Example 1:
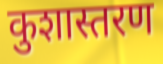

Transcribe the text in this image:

कुशास्तरण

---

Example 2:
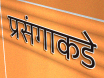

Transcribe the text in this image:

प्रसंगाकडे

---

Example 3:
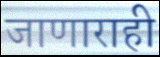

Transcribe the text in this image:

जाणाराही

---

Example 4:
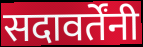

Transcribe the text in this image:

सदावर्तेंनी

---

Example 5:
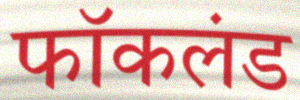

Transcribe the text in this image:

फॉकलंड